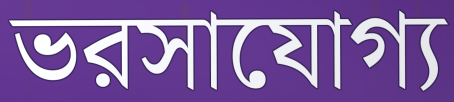
ভরসাযোগ্য